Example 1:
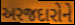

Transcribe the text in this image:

અરજદારોને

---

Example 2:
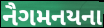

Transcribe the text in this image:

નૈગમનયના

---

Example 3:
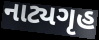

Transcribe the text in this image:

નાટ્યગૃહ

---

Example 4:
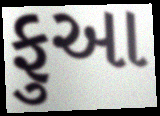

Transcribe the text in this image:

ફુઆ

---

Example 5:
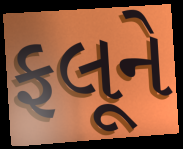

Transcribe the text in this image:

ફલૂને